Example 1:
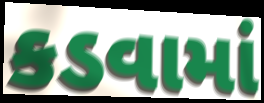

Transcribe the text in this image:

કડવામાં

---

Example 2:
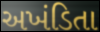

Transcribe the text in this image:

અખંડિતા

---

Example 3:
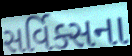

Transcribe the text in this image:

સર્વિક્સના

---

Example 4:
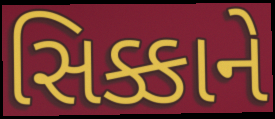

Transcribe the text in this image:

સિક્કાને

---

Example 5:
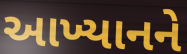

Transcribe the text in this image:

આખ્યાનને